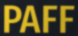
PAFF